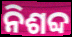
ନିଶବ୍ଦ